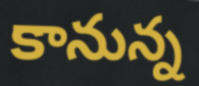
కానున్న